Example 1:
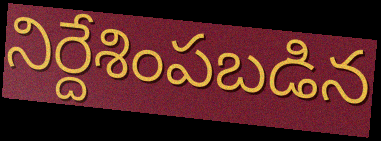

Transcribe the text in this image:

నిర్దేశింపబడిన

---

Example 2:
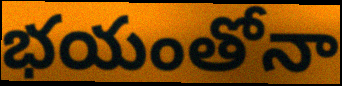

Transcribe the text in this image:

భయంతోనా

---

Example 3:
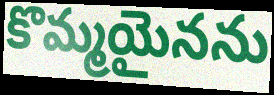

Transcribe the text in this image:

కొమ్మయైనను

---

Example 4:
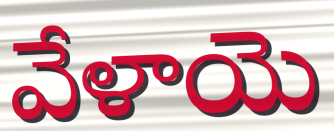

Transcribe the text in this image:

వేళాయె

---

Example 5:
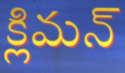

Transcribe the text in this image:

క్లిమన్